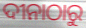
ଦୀନାଠାରୁ